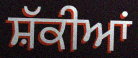
ਸ਼ੱਕੀਆਂ